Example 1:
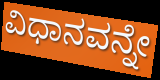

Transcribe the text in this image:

ವಿಧಾನವನ್ನೇ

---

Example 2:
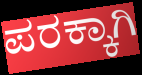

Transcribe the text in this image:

ಪರಕ್ಕಾಗಿ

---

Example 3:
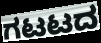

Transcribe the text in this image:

ಗಟಟದ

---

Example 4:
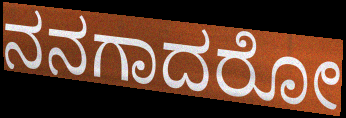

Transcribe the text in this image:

ನನಗಾದರೋ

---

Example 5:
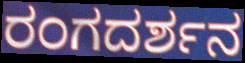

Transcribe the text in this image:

ರಂಗದರ್ಶನ